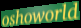
oshoworld